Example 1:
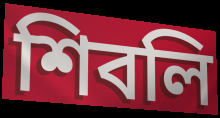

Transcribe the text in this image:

শিবলি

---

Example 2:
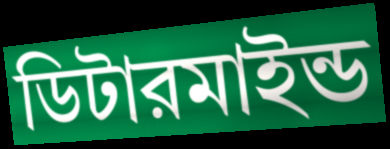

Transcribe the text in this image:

ডিটারমাইন্ড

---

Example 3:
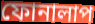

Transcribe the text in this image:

ফোনালাপ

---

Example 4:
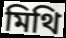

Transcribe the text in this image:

মিথি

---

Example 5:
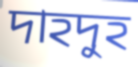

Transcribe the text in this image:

দাহদুহ